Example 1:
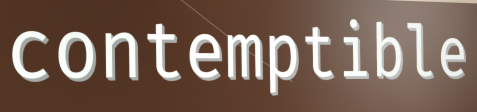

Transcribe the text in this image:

contemptible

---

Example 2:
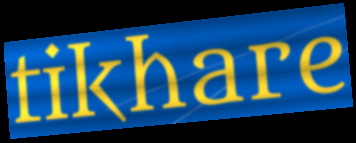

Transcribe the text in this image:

tikhare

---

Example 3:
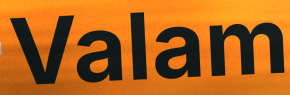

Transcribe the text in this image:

Valam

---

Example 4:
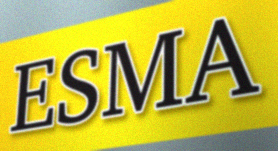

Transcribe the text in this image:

ESMA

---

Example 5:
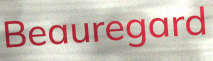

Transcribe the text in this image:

Beauregard